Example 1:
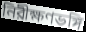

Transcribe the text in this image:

নিরীক্ষণভঙ্গি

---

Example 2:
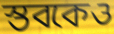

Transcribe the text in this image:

স্তবকেও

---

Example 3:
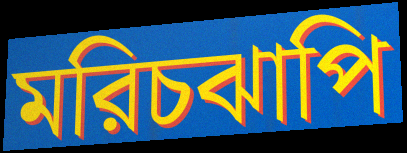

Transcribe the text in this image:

মরিচঝাপি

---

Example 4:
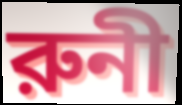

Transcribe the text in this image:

রুনী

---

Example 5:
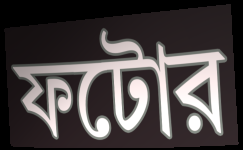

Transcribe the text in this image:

ফটোর